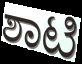
ಶಾಟಿ